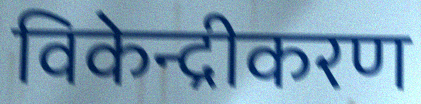
विकेन्द्रीकरण